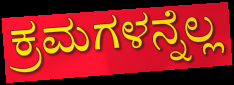
ಕ್ರಮಗಳನ್ನೆಲ್ಲ